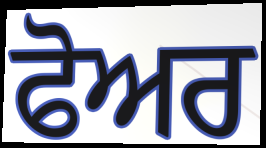
ਫੋਅਰ